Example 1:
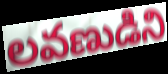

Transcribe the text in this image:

లవణుడిని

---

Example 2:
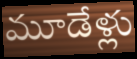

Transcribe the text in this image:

మూడేళ్లు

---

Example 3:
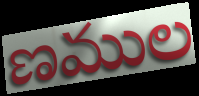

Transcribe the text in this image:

ణముల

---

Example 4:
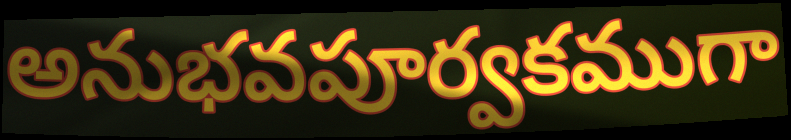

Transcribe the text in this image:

అనుభవపూర్వకముగా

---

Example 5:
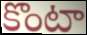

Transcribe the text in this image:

కొంటా